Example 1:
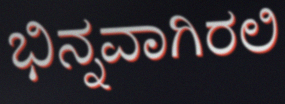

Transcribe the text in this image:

ಭಿನ್ನವಾಗಿರಲಿ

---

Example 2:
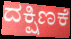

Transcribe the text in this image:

ದಕ್ಷಿಣಕೆ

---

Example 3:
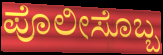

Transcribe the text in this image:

ಪೊಲೀಸೊಬ್ಬ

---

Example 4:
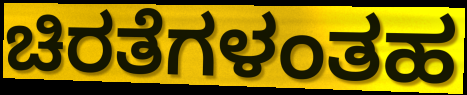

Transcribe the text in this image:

ಚಿರತೆಗಳಂತಹ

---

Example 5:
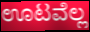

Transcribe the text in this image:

ಊಟವೆಲ್ಲ